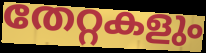
തേറ്റകളും